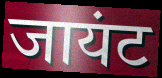
जायंट